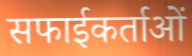
सफाईकर्ताओं